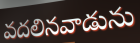
వదలినవాడును